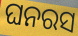
ଘନରସ